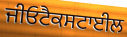
ਜੀਓਟੈਕਸਟਾਈਲ